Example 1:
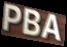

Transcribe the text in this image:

PBA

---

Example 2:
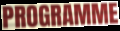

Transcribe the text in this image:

PROGRAMME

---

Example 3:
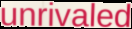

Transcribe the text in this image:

unrivaled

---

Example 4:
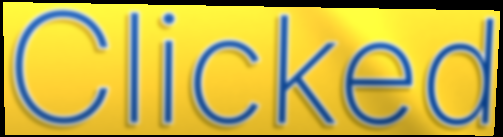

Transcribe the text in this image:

Clicked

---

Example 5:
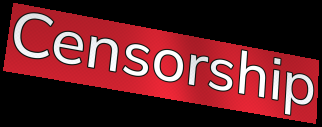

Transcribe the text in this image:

Censorship